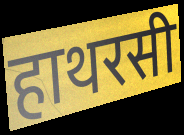
हाथरसी